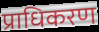
प्राधिकरण